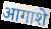
आगाशे